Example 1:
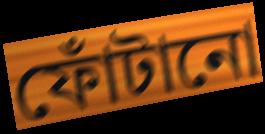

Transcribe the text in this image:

ফোঁটানো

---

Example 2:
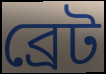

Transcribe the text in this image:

ব্রেট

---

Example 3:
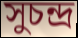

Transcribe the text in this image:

সুচন্দ্র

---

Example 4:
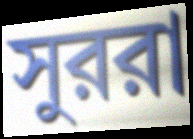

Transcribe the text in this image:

সুররা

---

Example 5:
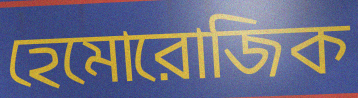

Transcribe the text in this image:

হেমোরোজিক